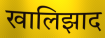
खालिझाद